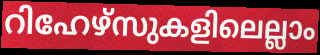
റിഹേഴ്സുകളിലെല്ലാം